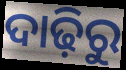
ଦାଢ଼ିରୁ